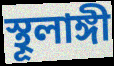
স্থূলাঙ্গী